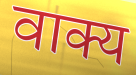
वाक्य